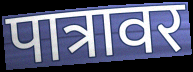
पात्रावर